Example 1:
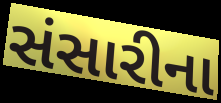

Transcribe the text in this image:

સંસારીના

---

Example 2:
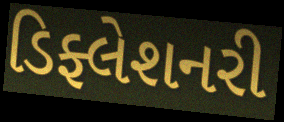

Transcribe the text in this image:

ડિફ્લેશનરી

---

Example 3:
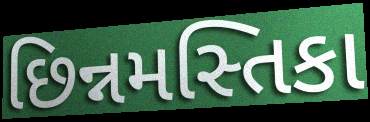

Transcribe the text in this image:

છિન્નમસ્તિકા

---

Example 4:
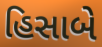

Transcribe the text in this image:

હિસાબે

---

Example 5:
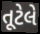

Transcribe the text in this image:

તૂટેલે